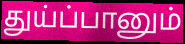
துய்ப்பானும்